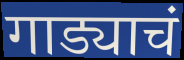
गाड्याचं